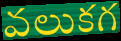
వలుకగ